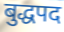
बुद्धपद